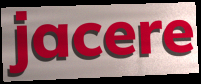
jacere